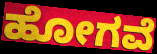
ಹೋಗವೆ